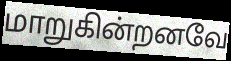
மாறுகின்றனவே